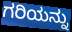
ಗರಿಯನ್ನು